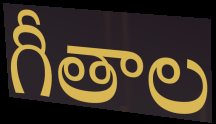
గీతాల